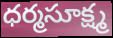
ధర్మసూక్ష్మ